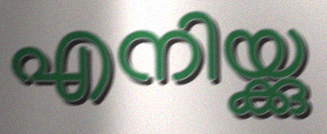
എനിയ്ക്കു